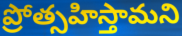
ప్రోత్సహిస్తామని